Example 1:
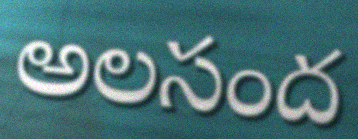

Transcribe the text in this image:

అలసంద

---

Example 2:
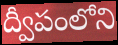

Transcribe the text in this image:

ద్వీపంలోని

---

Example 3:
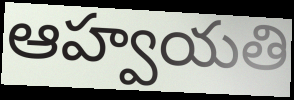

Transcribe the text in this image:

ఆహ్వయతి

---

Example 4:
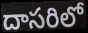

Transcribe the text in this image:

దాసరిలో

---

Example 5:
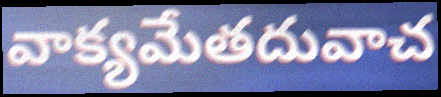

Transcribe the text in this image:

వాక్యమేతదువాచ